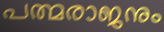
പത്മരാജനും